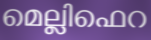
മെല്ലിഫെറ